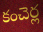
కంచెర్ల